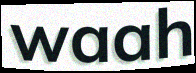
waah